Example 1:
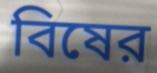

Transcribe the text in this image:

বিষের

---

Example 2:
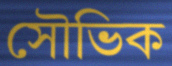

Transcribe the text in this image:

সৌভিক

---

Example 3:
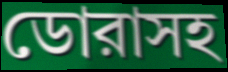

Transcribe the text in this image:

ডোরাসহ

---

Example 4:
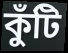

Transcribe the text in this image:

কুঁটি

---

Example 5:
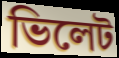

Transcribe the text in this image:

ভিলেট